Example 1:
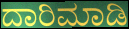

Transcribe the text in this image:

ದಾರಿಮಾಡಿ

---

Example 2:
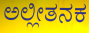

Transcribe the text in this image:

ಅಲ್ಲೀತನಕ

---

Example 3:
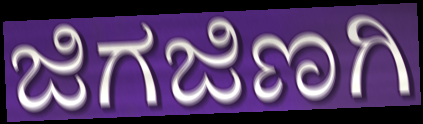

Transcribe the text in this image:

ಜಿಗಜಿಣಗಿ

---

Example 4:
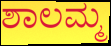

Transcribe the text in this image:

ಶಾಲಮ್ಮ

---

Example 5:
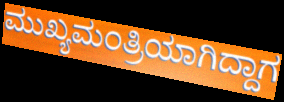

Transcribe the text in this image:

ಮುಖ್ಯಮಂತ್ರಿಯಾಗಿದ್ದಾಗ